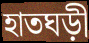
হাতঘড়ী